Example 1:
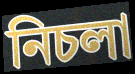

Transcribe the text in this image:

নিচলা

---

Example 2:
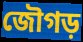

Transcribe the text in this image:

জৌগড়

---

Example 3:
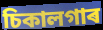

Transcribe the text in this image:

চিকালগাৰ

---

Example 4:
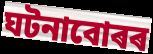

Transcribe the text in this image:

ঘটনাবোৰৰ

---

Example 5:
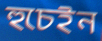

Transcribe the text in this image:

হুচেইন